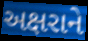
અક્ષરાને